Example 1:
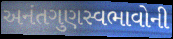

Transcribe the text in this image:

અનંતગુણસ્વભાવોની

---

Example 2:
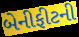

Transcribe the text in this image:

બેનીફીટની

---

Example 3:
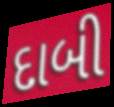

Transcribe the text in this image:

દાબી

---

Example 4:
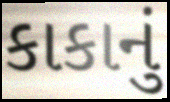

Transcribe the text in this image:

કાકાનું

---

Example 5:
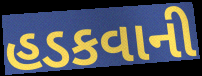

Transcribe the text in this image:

હડકવાની